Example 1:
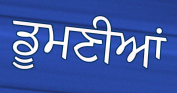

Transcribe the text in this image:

ਡੂਮਣੀਆਂ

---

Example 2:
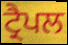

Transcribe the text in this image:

ਟ੍ਰੈਪਲ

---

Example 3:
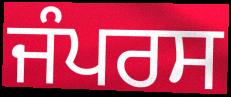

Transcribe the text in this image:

ਜੰਪਰਸ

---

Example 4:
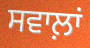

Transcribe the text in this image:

ਸਵਾਲ਼ਾਂ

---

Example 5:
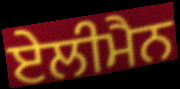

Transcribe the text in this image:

ਏਲੀਮੈਨ